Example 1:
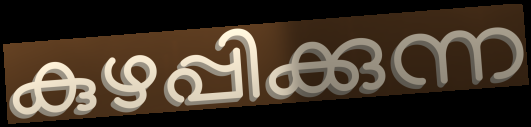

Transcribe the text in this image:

കുഴപ്പിക്കുന്ന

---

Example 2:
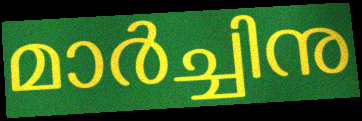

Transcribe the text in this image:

മാർച്ചിനു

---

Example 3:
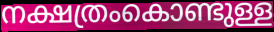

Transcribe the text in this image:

നക്ഷത്രംകൊണ്ടുള്ള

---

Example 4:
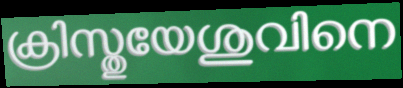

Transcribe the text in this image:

ക്രിസ്തുയേശുവിനെ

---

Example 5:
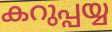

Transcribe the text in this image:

കറുപ്പയ്യ